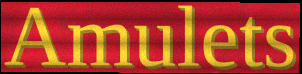
Amulets